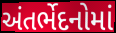
અંતર્ભેદનોમાં